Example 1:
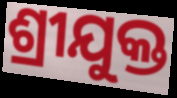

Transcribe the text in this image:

ଶ୍ରୀଯୁକ୍ତ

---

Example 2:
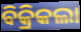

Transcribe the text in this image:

ବିକ୍ରିକଲା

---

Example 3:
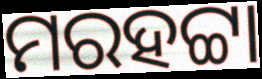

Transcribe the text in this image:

ମରହଟ୍ଟା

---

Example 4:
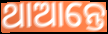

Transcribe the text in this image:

ଥାଆନ୍ତେ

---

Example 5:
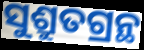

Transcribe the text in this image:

ସୁଶ୍ରୁତଗ୍ରନ୍ଥ